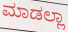
ಮಾಡಲ್ಲಾ